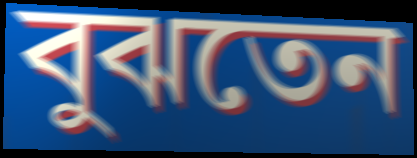
বুঝতেন